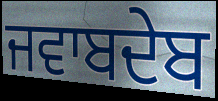
ਜਵਾਬਦੇਬ